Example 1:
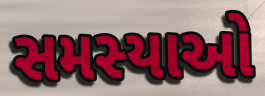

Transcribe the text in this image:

સમસ્યાઓ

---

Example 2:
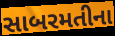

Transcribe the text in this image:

સાબરમતીના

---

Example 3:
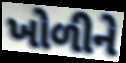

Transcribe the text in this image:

ખોળીને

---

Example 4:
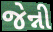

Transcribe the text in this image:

જેન્ની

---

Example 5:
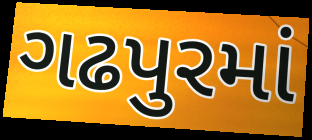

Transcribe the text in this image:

ગઢપુરમાં